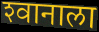
श्वानाला